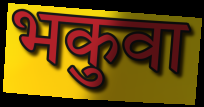
भकुवा